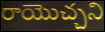
రాయొచ్చని